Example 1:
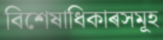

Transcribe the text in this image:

বিশেষাধিকাৰসমূহ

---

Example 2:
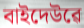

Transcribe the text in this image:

বাইদেউৱে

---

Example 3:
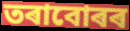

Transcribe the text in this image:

তৰাবোৰৰ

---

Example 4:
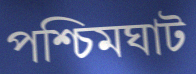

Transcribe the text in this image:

পশ্চিমঘাট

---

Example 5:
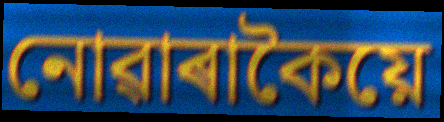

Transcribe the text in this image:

নোৱাৰাকৈয়ে